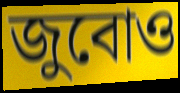
জুবোও